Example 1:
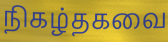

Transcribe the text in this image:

நிகழ்தகவை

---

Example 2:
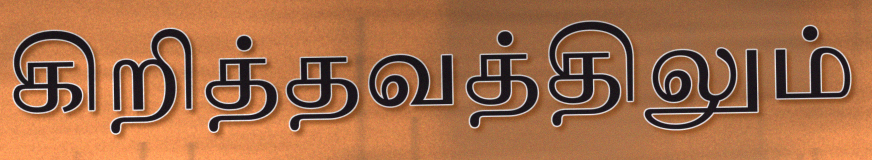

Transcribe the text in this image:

கிறித்தவத்திலும்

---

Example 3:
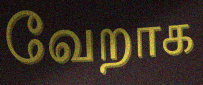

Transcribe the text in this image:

வேறாக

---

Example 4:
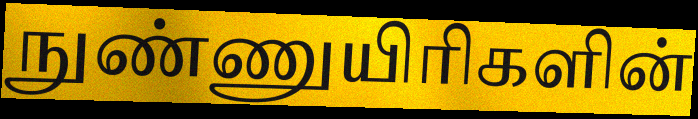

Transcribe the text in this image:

நுண்ணுயிரிகளின்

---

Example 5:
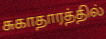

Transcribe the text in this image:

சுகாதாரத்தில்